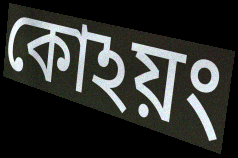
কোঽয়ং